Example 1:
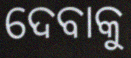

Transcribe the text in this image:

ଦେବାକୁ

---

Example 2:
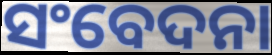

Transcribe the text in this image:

ସଂବେଦନା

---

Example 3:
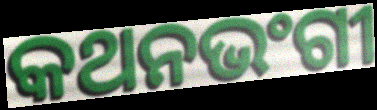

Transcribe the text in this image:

କଥନଭଂଗୀ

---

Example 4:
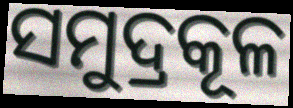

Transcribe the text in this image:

ସମୁଦ୍ରକୂଳ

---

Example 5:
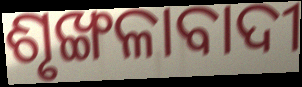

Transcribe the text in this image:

ଶୃଙ୍ଖଳାବାଦୀ